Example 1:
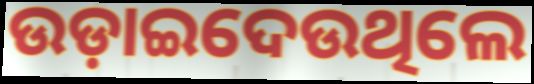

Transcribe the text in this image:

ଉଡ଼ାଇଦେଉଥିଲେ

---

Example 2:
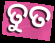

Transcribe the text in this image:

ତୁତ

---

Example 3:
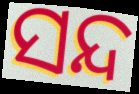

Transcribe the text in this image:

ସନ୍ଦ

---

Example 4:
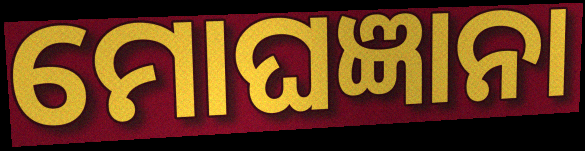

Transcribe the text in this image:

ମୋଘଜ୍ଞାନା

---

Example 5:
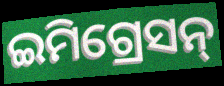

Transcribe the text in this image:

ଇମିଗ୍ରେସନ୍